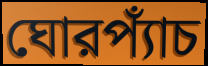
ঘোরপ্যাঁচ